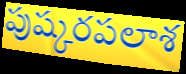
పుష్కరపలాశ